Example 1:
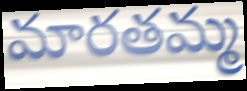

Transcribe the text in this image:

మారతమ్మ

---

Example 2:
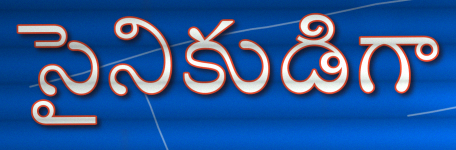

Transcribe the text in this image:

సైనికుడిగా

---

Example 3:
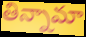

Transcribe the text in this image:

తిన్నామా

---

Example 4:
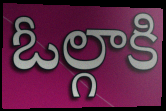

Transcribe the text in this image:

ఓల్గాకి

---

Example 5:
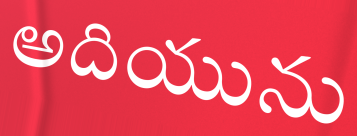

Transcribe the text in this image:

అదియును